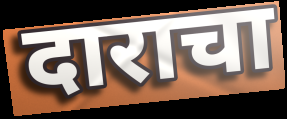
दाराचा